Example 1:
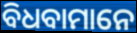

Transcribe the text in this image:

ବିଧବାମାନେ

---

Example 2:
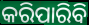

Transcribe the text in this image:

କରିପାରିବି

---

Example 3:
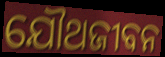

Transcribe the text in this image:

ଯୌଥଜୀବନ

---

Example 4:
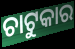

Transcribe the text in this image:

ଚାଟୁକାର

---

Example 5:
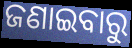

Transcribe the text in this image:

ଜଣାଇବାରୁ